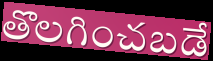
తొలగించబడే